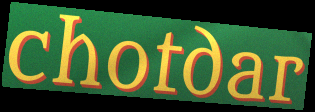
chotdar